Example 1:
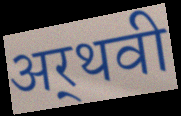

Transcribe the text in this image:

अर्थवी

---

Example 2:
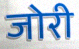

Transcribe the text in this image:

जोरी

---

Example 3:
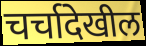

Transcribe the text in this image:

चर्चादेखील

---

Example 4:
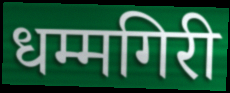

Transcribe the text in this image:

धम्मगिरी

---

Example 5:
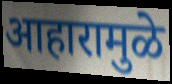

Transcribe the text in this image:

आहारामुळे